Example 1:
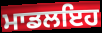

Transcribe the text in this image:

ਮਾਡਲਇਹ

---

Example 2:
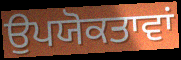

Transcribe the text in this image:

ਉਪਯੋਕਤਾਵਾਂ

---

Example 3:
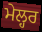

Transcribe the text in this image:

ਮੇਲ੍ਹਰ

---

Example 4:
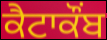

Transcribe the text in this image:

ਕੈਟਾਕੌਂਬ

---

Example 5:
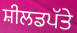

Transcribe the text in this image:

ਸ਼ੀਲਡਪੱਤੇ